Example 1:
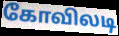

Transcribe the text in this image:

கோவிலடி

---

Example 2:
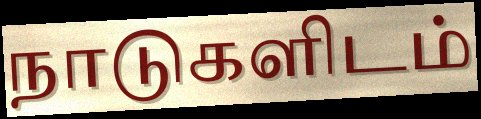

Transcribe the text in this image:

நாடுகளிடம்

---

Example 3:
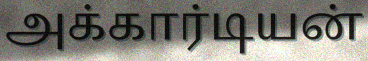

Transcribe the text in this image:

அக்கார்டியன்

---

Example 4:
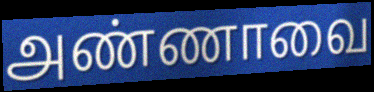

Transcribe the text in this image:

அண்ணாவை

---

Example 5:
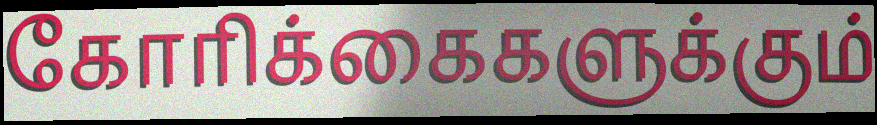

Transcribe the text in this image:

கோரிக்கைகளுக்கும்